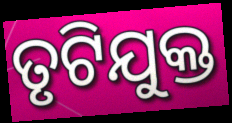
ତୃଟିଯୁକ୍ତ